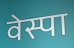
वेस्पा